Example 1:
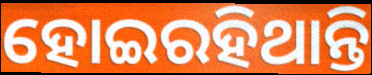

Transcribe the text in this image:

ହୋଇରହିଥାନ୍ତି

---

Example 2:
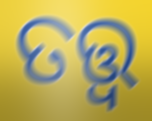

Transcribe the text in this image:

ତତ୍ତ୍ବ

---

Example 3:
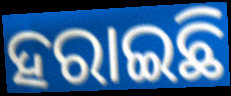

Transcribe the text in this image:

ହରାଇଛି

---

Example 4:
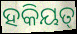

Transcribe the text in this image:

ହକିୟତ୍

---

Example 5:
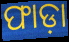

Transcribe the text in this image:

ଫାଡ଼ା